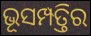
ଭୂସମ୍ପତ୍ତିର